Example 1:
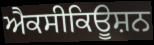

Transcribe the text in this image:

ਐਕਸੀਕਿਊਸ਼ਨ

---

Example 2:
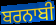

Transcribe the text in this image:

ਬਰਨਾਬੀ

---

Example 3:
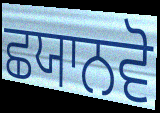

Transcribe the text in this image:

ਛਯਾਨਵੋ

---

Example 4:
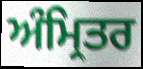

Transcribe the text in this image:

ਅੰਮ੍ਰਿਤਰ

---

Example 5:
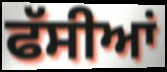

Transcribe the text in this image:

ਫੱਸੀਆਂ